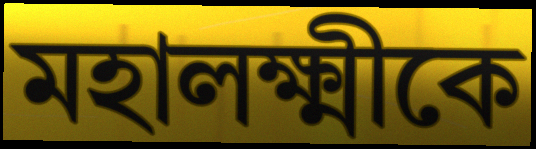
মহালক্ষ্মীকে